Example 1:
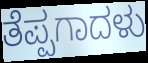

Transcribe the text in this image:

ತೆಪ್ಪಗಾದಳು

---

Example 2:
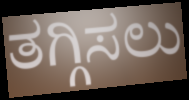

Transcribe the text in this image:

ತಗ್ಗಿಸಲು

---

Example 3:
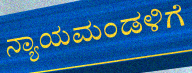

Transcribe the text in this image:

ನ್ಯಾಯಮಂಡಳಿಗೆ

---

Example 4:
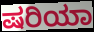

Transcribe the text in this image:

ಷರಿಯಾ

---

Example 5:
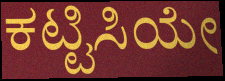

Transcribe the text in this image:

ಕಟ್ಟಿಸಿಯೇ